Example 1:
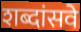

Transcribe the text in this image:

शब्दांसवे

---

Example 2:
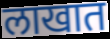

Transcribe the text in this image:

लाखात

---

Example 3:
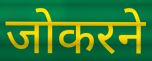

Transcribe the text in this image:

जोकरने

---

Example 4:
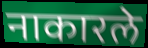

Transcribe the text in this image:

नाकारले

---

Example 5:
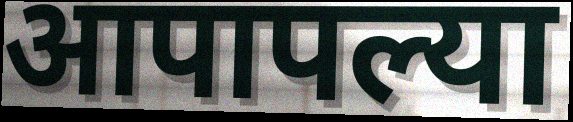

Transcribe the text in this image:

आपापल्या